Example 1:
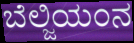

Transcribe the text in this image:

ಬೆಲ್ಜಿಯಂನ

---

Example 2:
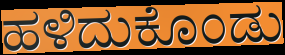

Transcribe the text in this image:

ಹಳಿದುಕೊಂಡು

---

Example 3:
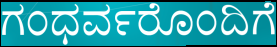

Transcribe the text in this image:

ಗಂಧರ್ವರೊಂದಿಗೆ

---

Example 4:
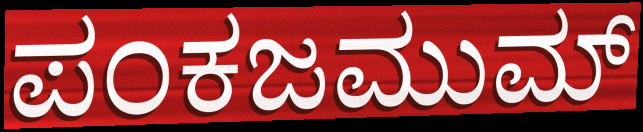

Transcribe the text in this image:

ಪಂಕಜಮುಮ್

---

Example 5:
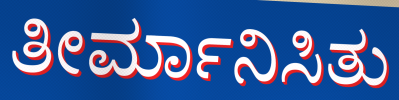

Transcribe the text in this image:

ತೀರ್ಮಾನಿಸಿತು